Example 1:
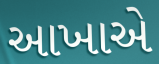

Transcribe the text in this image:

આખાએ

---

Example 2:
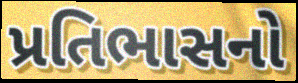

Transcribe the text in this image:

પ્રતિભાસનો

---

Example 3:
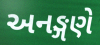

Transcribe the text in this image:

અનઙ્ગણે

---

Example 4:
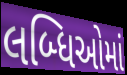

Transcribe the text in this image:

લબ્ધિઓમાં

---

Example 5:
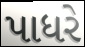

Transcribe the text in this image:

પાધરે